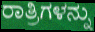
ರಾತ್ರಿಗಳನ್ನು